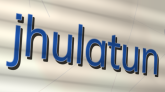
jhulatun